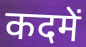
कदमें